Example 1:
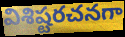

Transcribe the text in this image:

విశిష్టరచనగా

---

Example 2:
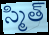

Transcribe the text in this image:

స్మిత్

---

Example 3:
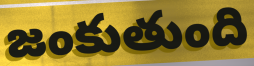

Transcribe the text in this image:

జంకుతుంది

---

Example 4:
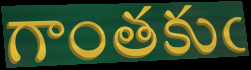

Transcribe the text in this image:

గాంతకుఁ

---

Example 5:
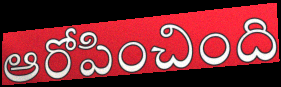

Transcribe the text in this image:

ఆరోపించింది